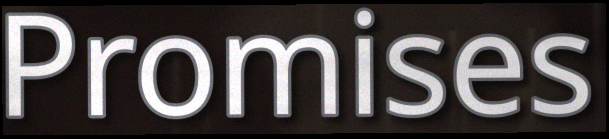
Promises